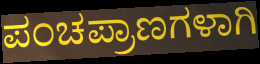
ಪಂಚಪ್ರಾಣಗಳಾಗಿ